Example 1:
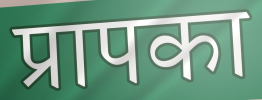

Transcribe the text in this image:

प्रापका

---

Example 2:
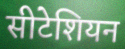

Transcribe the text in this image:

सीटेशियन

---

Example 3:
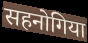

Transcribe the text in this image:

सहनोगिया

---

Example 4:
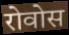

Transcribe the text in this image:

रोवोस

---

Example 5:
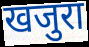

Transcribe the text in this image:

खजुरा